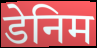
डेनिम